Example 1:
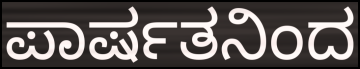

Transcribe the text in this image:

ಪಾರ್ಷತನಿಂದ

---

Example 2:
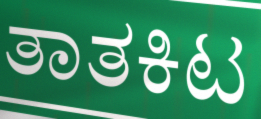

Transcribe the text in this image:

ತಾತಕಿಟ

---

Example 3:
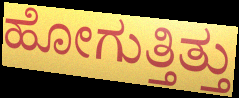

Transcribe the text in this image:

ಹೋಗುತ್ತಿತ್ತು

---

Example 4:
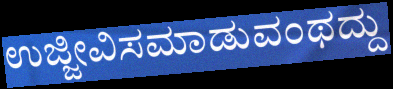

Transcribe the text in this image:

ಉಜ್ಜೀವಿಸಮಾಡುವಂಥದ್ದು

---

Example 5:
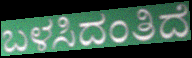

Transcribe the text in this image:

ಬಳಸಿದಂತಿದೆ